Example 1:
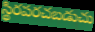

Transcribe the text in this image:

స్థిరపరచబడుచు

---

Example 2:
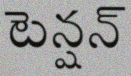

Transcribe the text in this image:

టెన్షన్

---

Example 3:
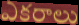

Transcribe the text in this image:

ఎకరాలు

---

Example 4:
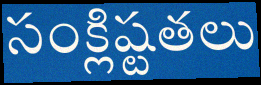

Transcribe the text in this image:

సంక్లిష్టతలు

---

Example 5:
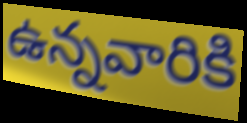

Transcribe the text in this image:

ఉన్నవారికి